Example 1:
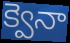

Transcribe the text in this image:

క్వెనా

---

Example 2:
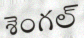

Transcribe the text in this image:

శెంగల్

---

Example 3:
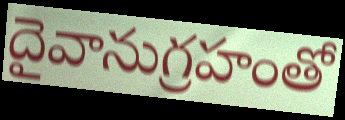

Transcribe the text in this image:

దైవానుగ్రహంతో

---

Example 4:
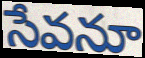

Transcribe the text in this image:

సేవనూ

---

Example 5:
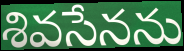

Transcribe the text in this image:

శివసేనను